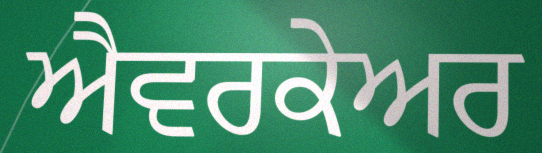
ਐਵਰਕੇਅਰ